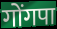
गोंगपा